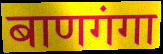
बाणगंगा